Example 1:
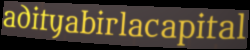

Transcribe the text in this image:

adityabirlacapital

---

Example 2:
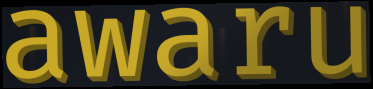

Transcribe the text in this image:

awaru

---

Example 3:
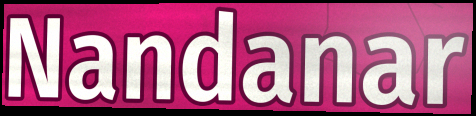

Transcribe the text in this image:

Nandanar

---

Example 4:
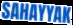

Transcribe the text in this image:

SAHAYYAK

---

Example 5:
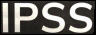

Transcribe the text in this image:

IPSS